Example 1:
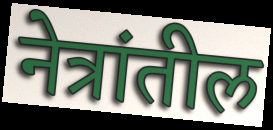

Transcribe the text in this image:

नेत्रांतील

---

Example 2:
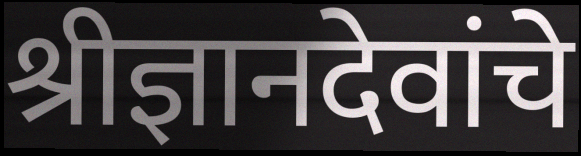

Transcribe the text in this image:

श्रीज्ञानदेवांचे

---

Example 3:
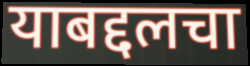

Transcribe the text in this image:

याबद्दलचा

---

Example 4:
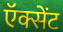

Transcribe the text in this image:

ऍक्सेंट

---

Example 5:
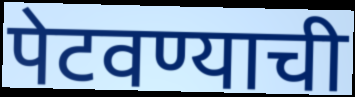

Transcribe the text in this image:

पेटवण्याची